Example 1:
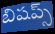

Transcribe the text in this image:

బిషప్స్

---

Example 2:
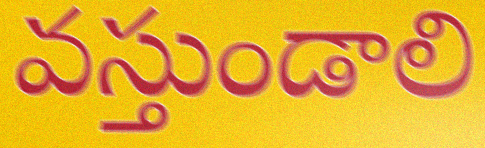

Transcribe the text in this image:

వస్తుండాలి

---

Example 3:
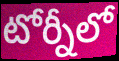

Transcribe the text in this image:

టోర్నీలో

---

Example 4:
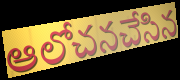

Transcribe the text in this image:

ఆలోచనచేసిన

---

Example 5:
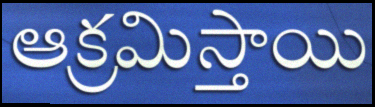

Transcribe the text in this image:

ఆక్రమిస్తాయి